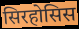
सिरहोसिस